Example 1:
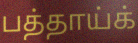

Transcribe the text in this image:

பத்தாய்க்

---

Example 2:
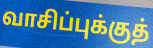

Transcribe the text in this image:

வாசிப்புக்குத்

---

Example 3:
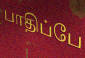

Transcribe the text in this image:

பாதிப்பே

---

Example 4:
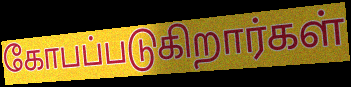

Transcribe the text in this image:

கோபப்படுகிறார்கள்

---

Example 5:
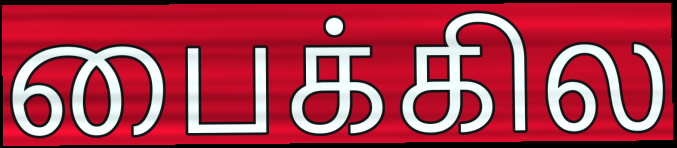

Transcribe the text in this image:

பைக்கில